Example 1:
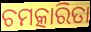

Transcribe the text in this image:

ଚମତ୍କାରିତା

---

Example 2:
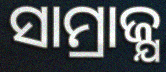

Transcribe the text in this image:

ସାମ୍ରାଜ୍ଯ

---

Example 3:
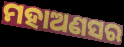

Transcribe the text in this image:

ମହାଅଣସର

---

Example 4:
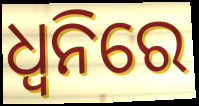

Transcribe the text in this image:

ଧ୍ଵନିରେ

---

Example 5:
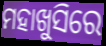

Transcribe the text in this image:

ମହାଖୁସିରେ